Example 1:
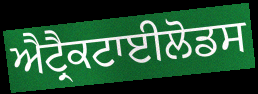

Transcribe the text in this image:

ਐਟ੍ਰੈਕਟਾਈਲੋਡਸ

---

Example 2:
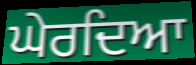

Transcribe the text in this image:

ਘੇਰਦਿਆ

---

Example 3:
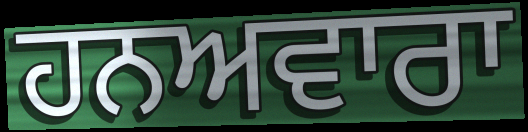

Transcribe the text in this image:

ਹਨਅਵਾਰਾ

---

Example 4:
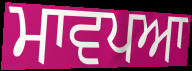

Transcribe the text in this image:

ਮਾਵਪਆ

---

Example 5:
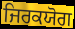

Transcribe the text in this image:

ਜਿਰਕਯੋਗ